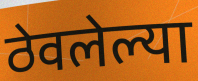
ठेवलेल्या